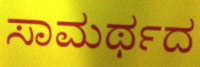
ಸಾಮರ್ಥದ